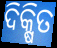
ଦିକ୍ଷିତ